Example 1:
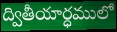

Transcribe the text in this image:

ద్వితీయార్ధములో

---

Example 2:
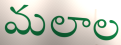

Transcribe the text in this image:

మలాల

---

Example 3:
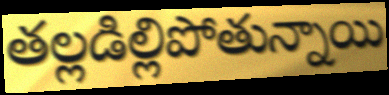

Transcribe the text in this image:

తల్లడిల్లిపోతున్నాయి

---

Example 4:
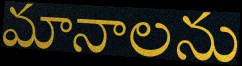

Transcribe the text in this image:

మానాలను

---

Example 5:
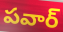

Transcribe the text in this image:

పవార్